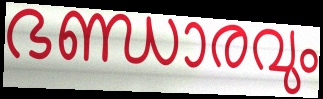
ഭണ്ഡാരവും